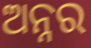
ଅନ୍ନର